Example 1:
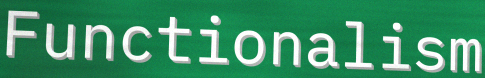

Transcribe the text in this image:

Functionalism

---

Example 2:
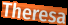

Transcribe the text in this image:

Theresa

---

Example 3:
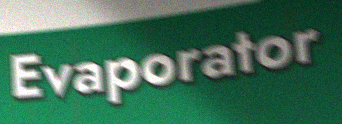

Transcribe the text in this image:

Evaporator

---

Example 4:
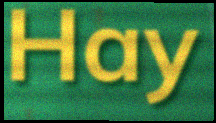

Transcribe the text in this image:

Hay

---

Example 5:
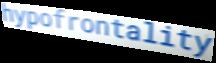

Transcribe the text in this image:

hypofrontality